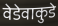
वेडेवाकुडे